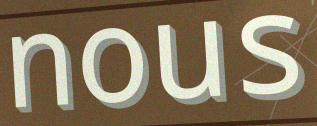
nous